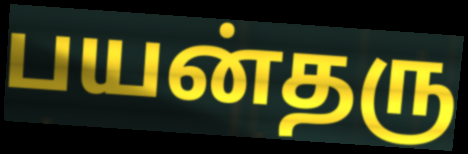
பயன்தரு